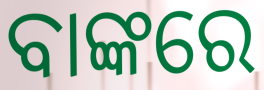
ବାଙ୍କରେ